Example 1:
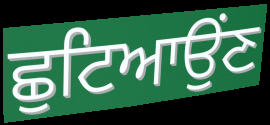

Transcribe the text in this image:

ਛੁਟਿਆਉਂਣ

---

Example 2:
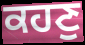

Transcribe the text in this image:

ਕਹਣੁ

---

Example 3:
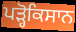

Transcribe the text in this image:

ਪੜ੍ਹੋਕਿਸਾਨ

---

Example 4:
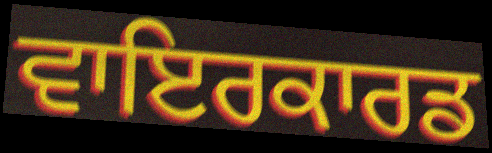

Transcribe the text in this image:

ਵਾਇਰਕਾਰਡ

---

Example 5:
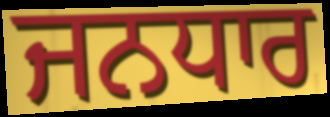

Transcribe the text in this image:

ਜਨਧਾਰ